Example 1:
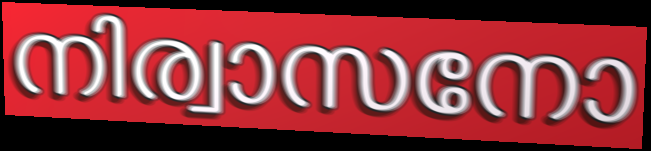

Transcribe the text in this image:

നിര്വാസനോ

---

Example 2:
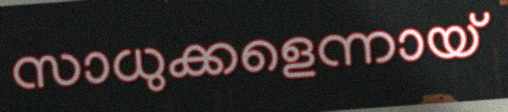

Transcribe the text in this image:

സാധുക്കളെന്നായ്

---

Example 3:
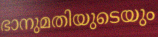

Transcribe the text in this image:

ഭാനുമതിയുടെയും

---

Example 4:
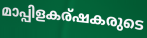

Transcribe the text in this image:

മാപ്പിളകര്ഷകരുടെ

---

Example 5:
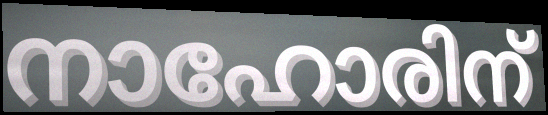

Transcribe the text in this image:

നാഹോരിന്